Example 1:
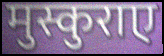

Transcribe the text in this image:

मुस्कुराए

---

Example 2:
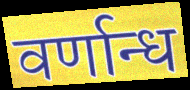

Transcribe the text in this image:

वर्णान्ध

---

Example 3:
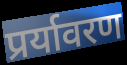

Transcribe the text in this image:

प्रर्यावरण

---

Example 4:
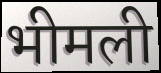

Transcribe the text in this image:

भीमली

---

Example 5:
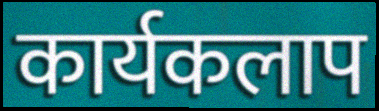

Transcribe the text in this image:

कार्यकलाप